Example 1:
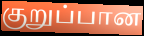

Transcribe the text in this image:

குறுப்பான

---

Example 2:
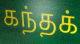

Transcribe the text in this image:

கந்தக்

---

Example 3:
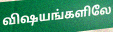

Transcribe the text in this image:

விஷயங்களிலே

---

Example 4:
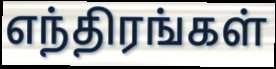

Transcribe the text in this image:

எந்திரங்கள்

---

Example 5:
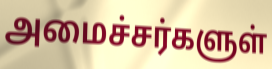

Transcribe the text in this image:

அமைச்சர்களுள்